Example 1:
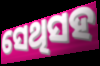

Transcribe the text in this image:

ସେଥିସହ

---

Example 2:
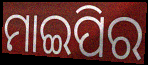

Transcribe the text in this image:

ମାଇପିର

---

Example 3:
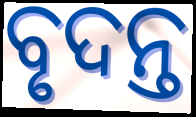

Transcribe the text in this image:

ବୃଦନ୍ତ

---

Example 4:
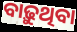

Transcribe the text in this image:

ବାଢ଼ୁଥିବା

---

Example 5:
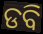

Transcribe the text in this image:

ଡବି